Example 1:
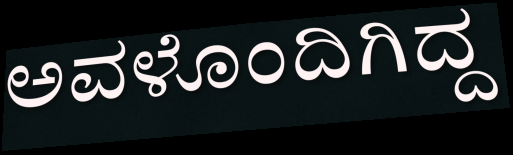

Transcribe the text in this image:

ಅವಳೊಂದಿಗಿದ್ದ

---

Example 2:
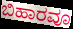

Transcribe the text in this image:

ಬಿಹಾರವೂ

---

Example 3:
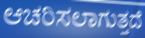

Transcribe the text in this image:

ಆಚರಿಸಲಾಗುತ್ತದೆ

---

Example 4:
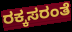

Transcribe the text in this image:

ರಕ್ಕಸರಂತೆ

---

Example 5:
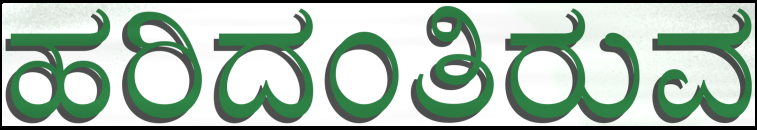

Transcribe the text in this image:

ಹರಿದಂತಿರುವ